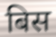
बिस